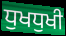
ਧੁਖਧੁਖੀ